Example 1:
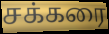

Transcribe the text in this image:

சக்கரை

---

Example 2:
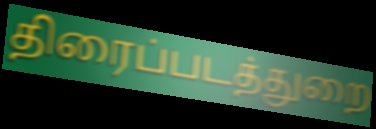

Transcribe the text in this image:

திரைப்படத்துறை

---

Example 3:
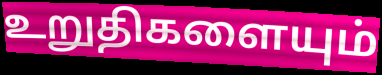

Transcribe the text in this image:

உறுதிகளையும்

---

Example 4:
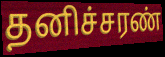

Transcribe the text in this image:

தனிச்சரண்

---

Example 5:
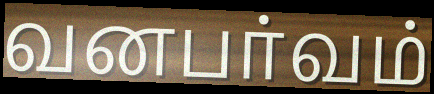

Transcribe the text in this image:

வனபர்வம்